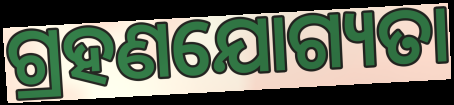
ଗ୍ରହଣଯୋଗ୍ୟତା